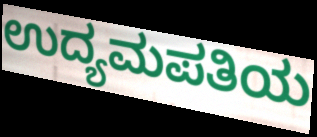
ಉದ್ಯಮಪತಿಯ